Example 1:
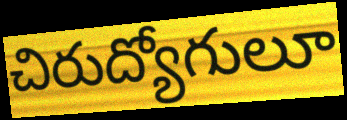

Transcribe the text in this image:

చిరుద్యోగులూ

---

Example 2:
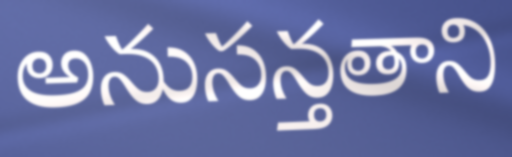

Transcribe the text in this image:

అనుసన్తతాని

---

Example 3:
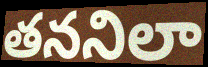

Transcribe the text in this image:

తననిలా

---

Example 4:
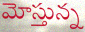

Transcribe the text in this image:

మోస్తున్న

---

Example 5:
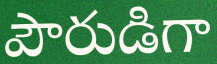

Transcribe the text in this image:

పౌరుడిగా